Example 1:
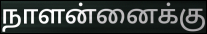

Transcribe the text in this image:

நாளன்னைக்கு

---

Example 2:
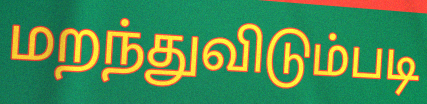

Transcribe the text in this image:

மறந்துவிடும்படி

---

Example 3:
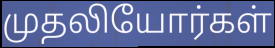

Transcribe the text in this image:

முதலியோர்கள்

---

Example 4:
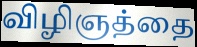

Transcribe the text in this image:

விழிஞத்தை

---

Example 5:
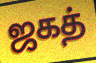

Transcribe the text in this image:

ஜகத்